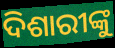
ଦିଶାରୀଙ୍କୁ